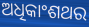
ଅଧିକାଂଶଥର